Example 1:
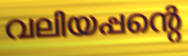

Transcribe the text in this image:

വലിയപ്പന്റെ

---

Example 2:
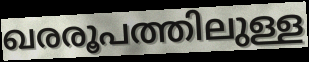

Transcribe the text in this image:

ഖരരൂപത്തിലുള്ള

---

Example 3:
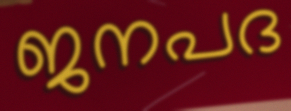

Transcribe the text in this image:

ജനപദ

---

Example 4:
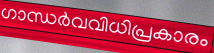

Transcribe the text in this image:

ഗാന്ധർവവിധിപ്രകാരം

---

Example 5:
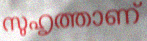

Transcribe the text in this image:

സുഹൃത്താണ്